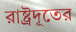
রাষ্ট্রদূতের